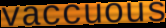
vaccuous